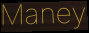
Maney